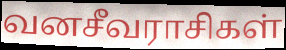
வனசீவராசிகள்